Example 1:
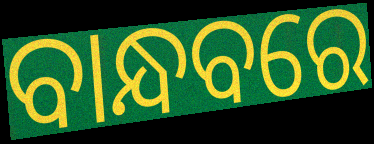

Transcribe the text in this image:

ବାନ୍ଧବରେ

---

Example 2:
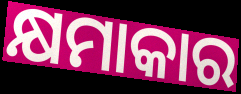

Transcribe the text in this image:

କ୍ଷମାକାର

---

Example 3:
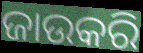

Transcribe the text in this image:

ଜାଉକରି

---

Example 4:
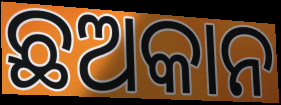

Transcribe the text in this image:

ଛଅକାନ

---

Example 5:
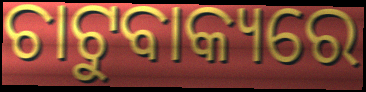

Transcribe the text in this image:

ଚାଟୁବାକ୍ୟରେ